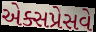
એક્સપ્રેસવે